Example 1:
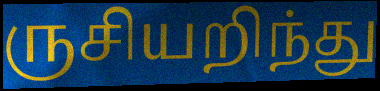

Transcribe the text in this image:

ருசியறிந்து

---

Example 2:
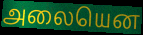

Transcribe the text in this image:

அலையென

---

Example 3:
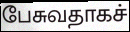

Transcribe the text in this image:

பேசுவதாகச்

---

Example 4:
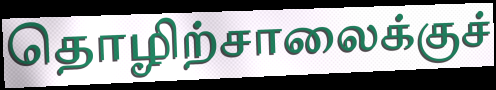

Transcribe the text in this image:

தொழிற்சாலைக்குச்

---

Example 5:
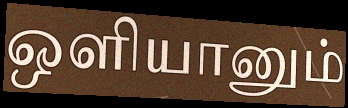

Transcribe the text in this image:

ஒளியானும்